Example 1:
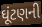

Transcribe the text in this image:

ઘૂંટણની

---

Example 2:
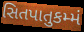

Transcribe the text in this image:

સિતપાતુકમ્મં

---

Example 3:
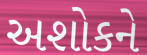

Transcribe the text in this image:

અશોકને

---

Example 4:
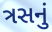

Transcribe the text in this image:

ત્રસનું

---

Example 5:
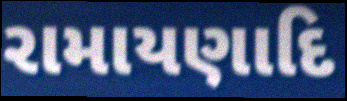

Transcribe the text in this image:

રામાયણાદિ